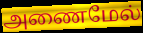
அணைமேல்